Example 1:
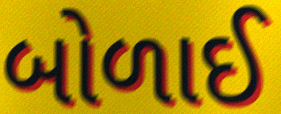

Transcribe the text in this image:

બોળાઈ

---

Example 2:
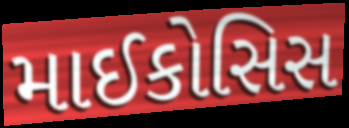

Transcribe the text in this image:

માઈકોસિસ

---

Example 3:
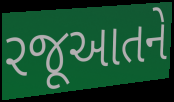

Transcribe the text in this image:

રજૂઆતને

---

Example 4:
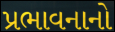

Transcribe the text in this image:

પ્રભાવનાનો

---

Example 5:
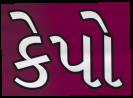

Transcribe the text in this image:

કેપો